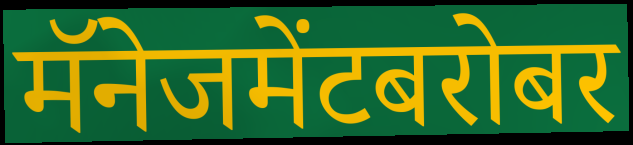
मॅनेजमेंटबरोबर